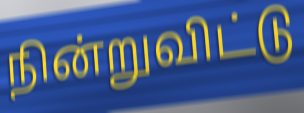
நின்றுவிட்டு